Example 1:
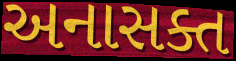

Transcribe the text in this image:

અનાસક્ત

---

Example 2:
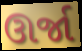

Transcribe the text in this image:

ઊર્જા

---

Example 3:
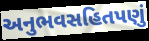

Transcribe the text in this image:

અનુભવસહિતપણું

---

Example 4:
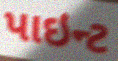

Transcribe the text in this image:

પાઇન્ટ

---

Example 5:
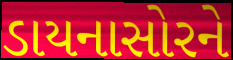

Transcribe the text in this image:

ડાયનાસોરને